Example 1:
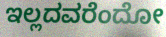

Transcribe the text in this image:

ಇಲ್ಲದವರೆಂದೋ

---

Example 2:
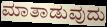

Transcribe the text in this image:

ಮಾತಾಡುವುದು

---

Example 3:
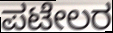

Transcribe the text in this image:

ಪಟೇಲರ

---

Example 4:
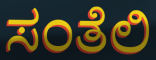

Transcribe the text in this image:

ಸಂತೆಲಿ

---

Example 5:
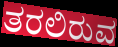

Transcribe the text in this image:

ತರಲಿರುವ